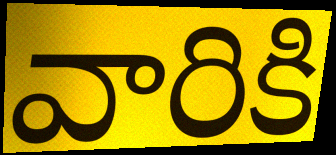
వారికి